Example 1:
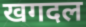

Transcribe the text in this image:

खगदल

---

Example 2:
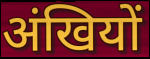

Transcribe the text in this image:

अंखियों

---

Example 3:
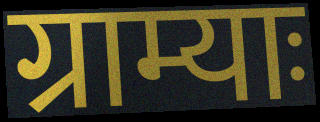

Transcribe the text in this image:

ग्राम्याः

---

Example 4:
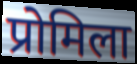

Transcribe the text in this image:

प्रोमिला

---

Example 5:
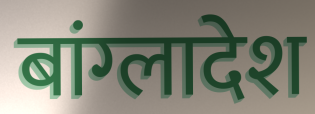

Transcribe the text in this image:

बांग्‍लादेश